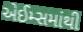
એઈમ્સમાંથી